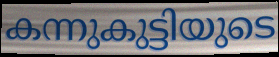
കന്നുകുട്ടിയുടെ